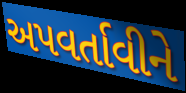
અપવર્તાવીને